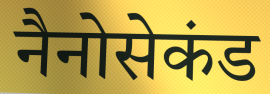
नैनोसेकंड